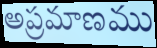
అప్రమాణము